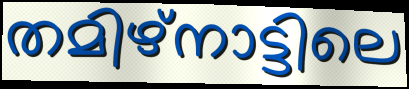
തമിഴ്നാട്ടിലെ